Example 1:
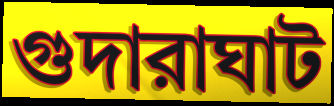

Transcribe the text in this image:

গুদারাঘাট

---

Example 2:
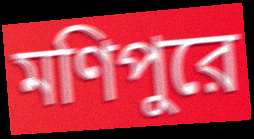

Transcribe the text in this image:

মণিপুরে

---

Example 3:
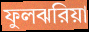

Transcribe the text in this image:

ফুলঝরিয়া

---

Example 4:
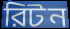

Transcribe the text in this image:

রিটন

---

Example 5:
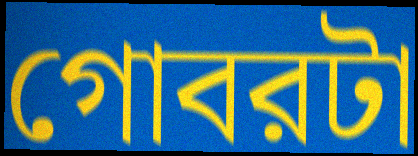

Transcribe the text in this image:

গোবরটা